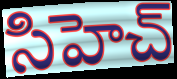
సిహెచ్